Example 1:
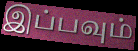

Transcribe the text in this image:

இப்பவும்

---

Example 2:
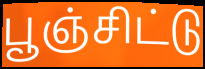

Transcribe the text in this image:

பூஞ்சிட்டு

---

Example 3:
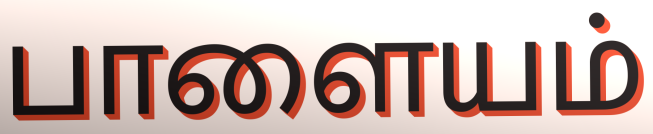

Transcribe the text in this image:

பாளையம்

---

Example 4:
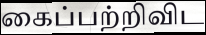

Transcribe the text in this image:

கைப்பற்றிவிட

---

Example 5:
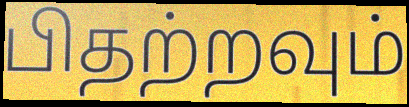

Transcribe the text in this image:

பிதற்றவும்